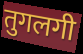
तुगलगी